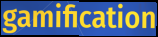
gamification